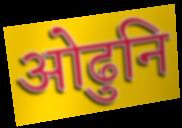
ओढुनि